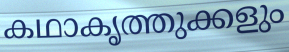
കഥാകൃത്തുക്കളും